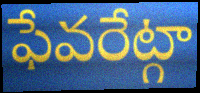
ఫేవరేట్గా